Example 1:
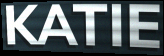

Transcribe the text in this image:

KATIE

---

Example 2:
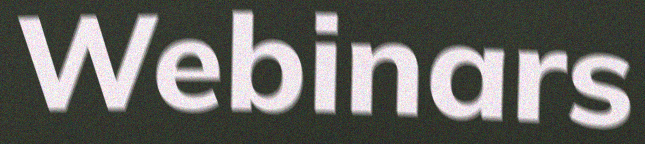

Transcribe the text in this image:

Webinars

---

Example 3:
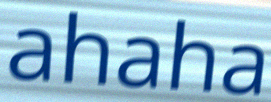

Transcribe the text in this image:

ahaha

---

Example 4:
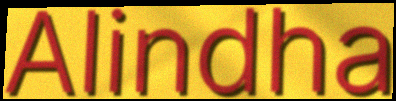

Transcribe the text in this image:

Alindha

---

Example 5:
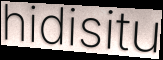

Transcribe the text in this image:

hidisitu